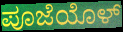
ಪೂಜೆಯೊಳ್